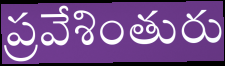
ప్రవేశింతురు